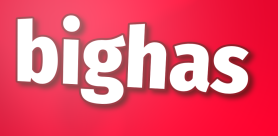
bighas